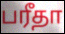
பரீதா